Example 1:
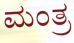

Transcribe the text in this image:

ಮಂತ್ರ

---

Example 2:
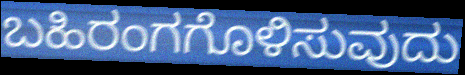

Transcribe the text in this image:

ಬಹಿರಂಗಗೊಳಿಸುವುದು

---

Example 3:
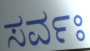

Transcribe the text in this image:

ಸರ್ವಃ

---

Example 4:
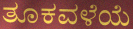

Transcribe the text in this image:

ತೂಕವಳೆಯೆ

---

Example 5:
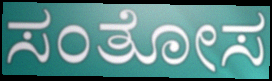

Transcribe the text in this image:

ಸಂತೋಸ